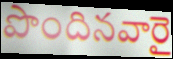
పొందినవారై